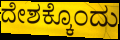
ದೇಶಕ್ಕೊಂದು